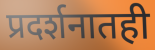
प्रदर्शनातही